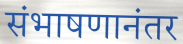
संभाषणानंतर